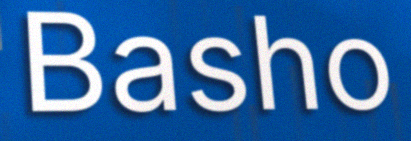
Basho